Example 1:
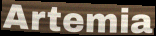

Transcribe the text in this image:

Artemia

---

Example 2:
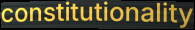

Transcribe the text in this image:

constitutionality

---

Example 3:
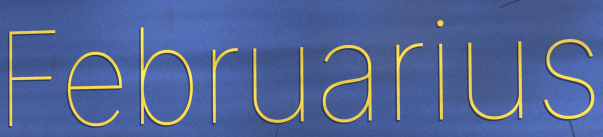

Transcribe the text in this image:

Februarius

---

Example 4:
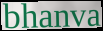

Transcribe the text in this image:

bhanva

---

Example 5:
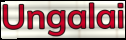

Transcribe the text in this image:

Ungalai